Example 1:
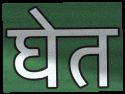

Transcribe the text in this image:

घेत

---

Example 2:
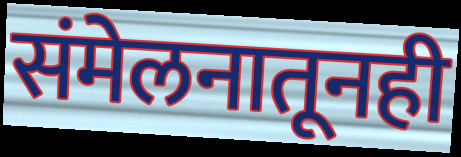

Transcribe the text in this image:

संमेलनातूनही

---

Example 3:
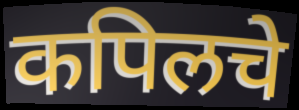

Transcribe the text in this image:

कपिलचे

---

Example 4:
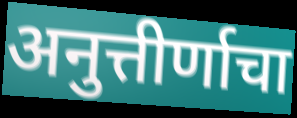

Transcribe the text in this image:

अनुत्तीर्णाचा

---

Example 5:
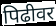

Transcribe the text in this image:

पिढीवर